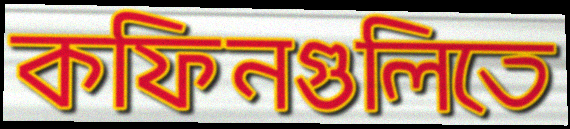
কফিনগুলিতে